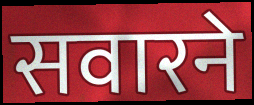
सवारने